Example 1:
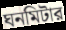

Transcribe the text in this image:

ঘনমিটার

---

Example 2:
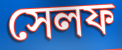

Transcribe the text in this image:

সেলফ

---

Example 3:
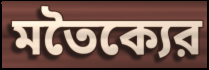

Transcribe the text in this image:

মতৈক্যের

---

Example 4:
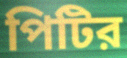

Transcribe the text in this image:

পিটির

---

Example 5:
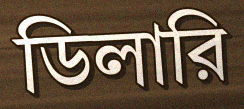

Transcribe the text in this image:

ডিলারি